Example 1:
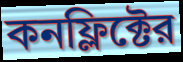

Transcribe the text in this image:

কনফ্লিক্টের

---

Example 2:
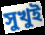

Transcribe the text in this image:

সুখুই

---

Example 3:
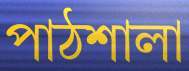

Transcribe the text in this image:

পাঠশালা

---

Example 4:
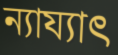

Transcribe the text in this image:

ন্যায্যাৎ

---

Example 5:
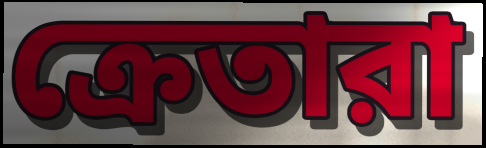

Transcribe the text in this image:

ক্রেতারা